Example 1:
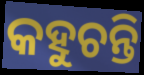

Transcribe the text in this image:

କହୁଚନ୍ତି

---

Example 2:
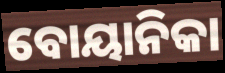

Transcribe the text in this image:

ବୋୟାନିକା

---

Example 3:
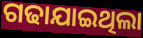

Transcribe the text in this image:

ଗଢାଯାଇଥିଲା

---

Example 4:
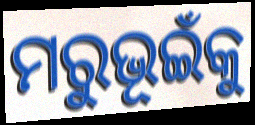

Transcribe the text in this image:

ମରୁଭୂଇଁକୁ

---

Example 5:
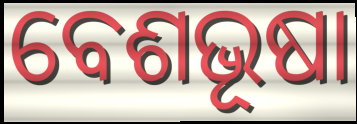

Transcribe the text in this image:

ବେଶଭୂଷା